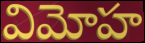
విమోహ